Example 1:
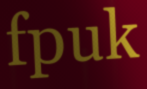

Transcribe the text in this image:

fpuk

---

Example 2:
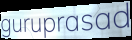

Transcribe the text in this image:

guruprasad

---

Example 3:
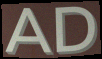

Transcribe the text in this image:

AD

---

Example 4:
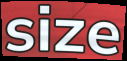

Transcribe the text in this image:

size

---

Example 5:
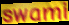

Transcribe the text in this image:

swami